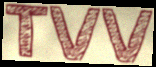
TVV